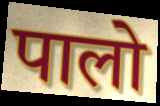
पालो